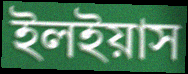
ইলইয়াস